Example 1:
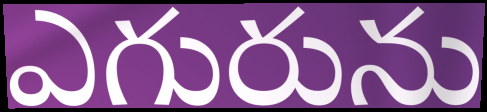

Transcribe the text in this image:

ఎగురును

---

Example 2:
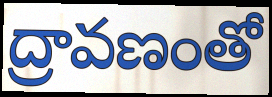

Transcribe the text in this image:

ద్రావణంతో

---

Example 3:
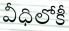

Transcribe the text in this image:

వీధిలోకీ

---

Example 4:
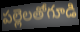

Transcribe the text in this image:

పల్లెలతోగూడి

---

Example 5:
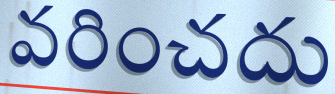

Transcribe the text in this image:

వరించదు